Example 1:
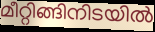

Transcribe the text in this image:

മീറ്റിങ്ങിനിടയിൽ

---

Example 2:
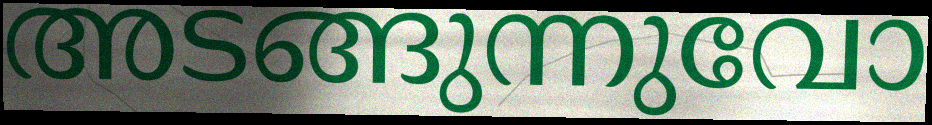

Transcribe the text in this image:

അടങ്ങുന്നുവോ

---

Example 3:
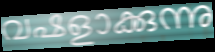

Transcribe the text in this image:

വഷളാക്കുന്നു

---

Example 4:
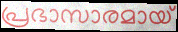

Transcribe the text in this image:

പ്രഭാസാരമായ്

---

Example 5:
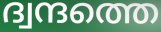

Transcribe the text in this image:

ദ്വന്ദത്തെ